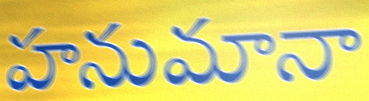
హనుమానా